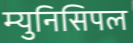
म्युनिसिपल